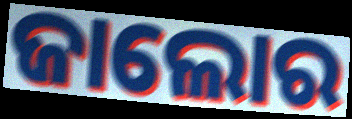
ଜାଲୋର